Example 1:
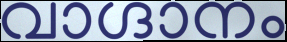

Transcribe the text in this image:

വാഗ്ദാനം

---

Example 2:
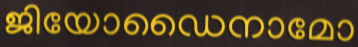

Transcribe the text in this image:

ജിയോഡൈനാമോ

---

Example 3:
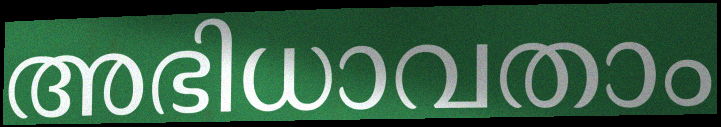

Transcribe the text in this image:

അഭിധാവതാം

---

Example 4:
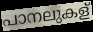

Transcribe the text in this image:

പാനലുകള്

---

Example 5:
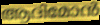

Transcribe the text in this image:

ആദിമോൻ